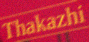
Thakazhi